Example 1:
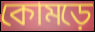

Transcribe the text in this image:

কোমড়ে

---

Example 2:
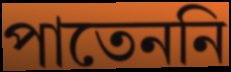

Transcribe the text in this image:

পাতেননি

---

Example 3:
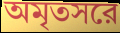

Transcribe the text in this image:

অমৃতসরে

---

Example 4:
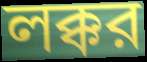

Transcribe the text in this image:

লক্কর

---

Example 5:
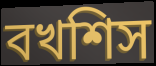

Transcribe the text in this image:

বখশিস